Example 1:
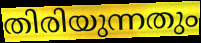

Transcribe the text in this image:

തിരിയുന്നതും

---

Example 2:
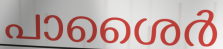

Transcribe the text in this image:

പാശൈർ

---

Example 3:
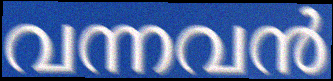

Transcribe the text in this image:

വന്നവൻ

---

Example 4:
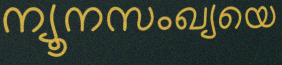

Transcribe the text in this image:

ന്യൂനസംഖ്യയെ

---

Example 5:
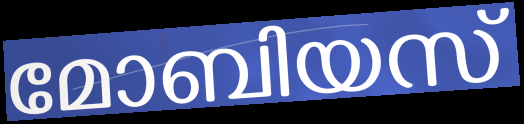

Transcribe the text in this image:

മോബിയസ്